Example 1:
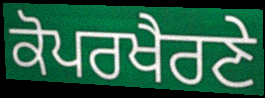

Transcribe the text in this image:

ਕੋਪਰਖੈਰਣੇ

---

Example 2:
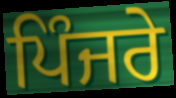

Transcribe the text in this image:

ਪਿੰਜਰੇ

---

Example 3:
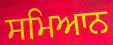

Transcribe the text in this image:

ਸਮਿਆਨ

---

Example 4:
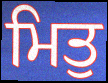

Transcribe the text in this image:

ਮਿਤੁ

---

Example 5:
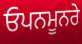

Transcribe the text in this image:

ਓਪਨਮੂਨਰੇ